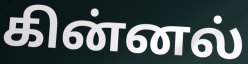
கின்னல்